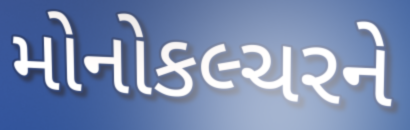
મોનોકલ્ચરને